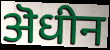
ऄधीन